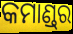
କମାଣ୍ଡ୍‌ର